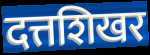
दत्तशिखर